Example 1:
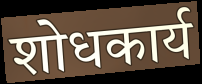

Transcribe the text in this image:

शोधकार्य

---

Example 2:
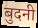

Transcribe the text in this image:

बुदनी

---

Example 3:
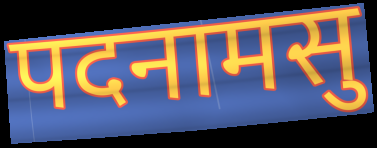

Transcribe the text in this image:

पदनामसु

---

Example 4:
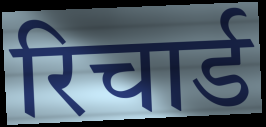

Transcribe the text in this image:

रिचार्ड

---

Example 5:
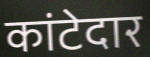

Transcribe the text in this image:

कांटेदार